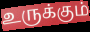
உருக்கும்